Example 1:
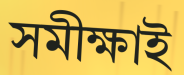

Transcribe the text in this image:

সমীক্ষাই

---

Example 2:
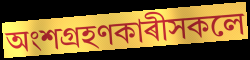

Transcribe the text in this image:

অংশগ্ৰহণকাৰীসকলে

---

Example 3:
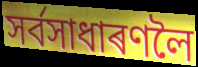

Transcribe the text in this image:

সৰ্বসাধাৰণলৈ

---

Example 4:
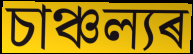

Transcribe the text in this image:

চাঞ্চল্যৰ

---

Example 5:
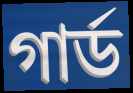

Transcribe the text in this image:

গাৰ্ড